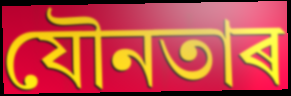
যৌনতাৰ